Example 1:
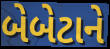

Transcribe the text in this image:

બેબેટાને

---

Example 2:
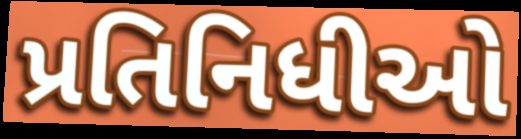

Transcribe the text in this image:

પ્રતિનિધીઓ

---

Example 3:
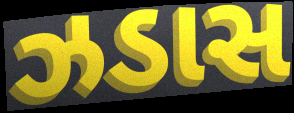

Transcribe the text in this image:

ઝડાસ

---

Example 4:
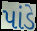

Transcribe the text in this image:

પાંડે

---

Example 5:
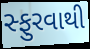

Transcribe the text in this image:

સ્ફુરવાથી